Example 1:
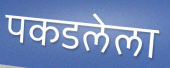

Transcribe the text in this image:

पकडलेला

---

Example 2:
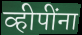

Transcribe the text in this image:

व्हीपींना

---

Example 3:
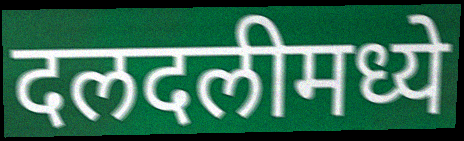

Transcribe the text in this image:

दलदलीमध्ये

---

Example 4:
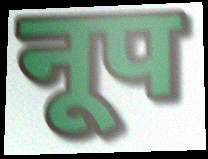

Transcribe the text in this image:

नूप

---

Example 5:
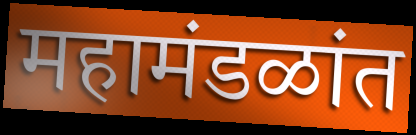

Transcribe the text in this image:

महामंडळांत